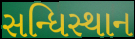
સન્ધિસ્થાન